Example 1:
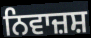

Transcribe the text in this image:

ਨਿਵਾਜ਼ਸ਼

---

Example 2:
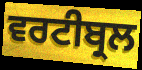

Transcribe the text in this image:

ਵਰਟੀਬ੍ਰਲ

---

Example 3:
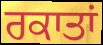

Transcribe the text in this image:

ਰਕਾਤਾਂ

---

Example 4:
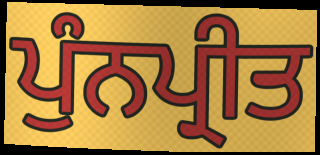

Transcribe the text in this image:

ਪੁੰਨਪ੍ਰੀਤ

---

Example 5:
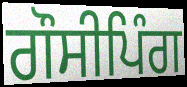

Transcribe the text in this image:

ਗੌਸੀਪਿੰਗ